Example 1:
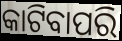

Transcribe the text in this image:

କାଟିବାପରି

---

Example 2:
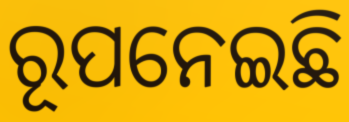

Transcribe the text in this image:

ରୂପନେଇଛି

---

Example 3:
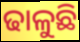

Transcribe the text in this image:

ଢାଳୁଛି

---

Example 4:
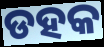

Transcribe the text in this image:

ଡହକ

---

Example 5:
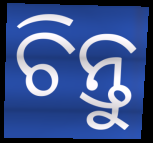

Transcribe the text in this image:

ଚିନ୍ତୁ